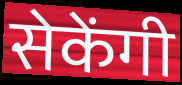
सेकेंगी